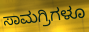
ಸಾಮಗ್ರಿಗಳೂ